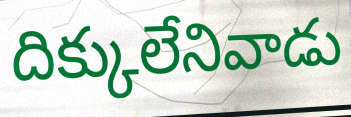
దిక్కులేనివాడు